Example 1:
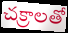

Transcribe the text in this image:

చక్రాలతో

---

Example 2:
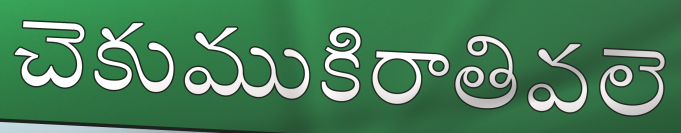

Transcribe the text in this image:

చెకుముకిరాతివలె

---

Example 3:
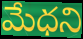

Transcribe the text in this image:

మేధని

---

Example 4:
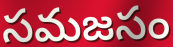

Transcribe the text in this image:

సమజసం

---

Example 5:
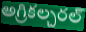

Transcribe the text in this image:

అగ్రికల్చరల్